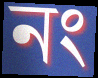
নং